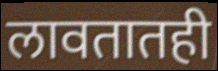
लावतातही